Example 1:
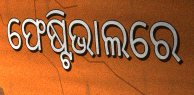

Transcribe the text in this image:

ଫେଷ୍ଟିଭାଲରେ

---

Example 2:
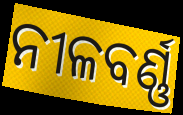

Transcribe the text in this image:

ନୀଳବର୍ଣ୍ଣ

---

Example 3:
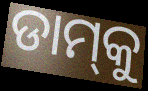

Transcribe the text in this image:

ଡାମ୍‍କୁ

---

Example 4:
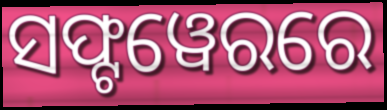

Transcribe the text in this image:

ସଫ୍ଟୱେରରେ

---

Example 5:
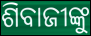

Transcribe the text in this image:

ଶିବାଜୀଙ୍କୁ